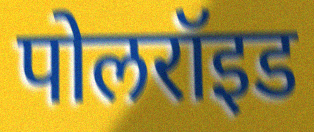
पोलरॉइड